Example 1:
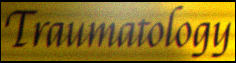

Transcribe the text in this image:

Traumatology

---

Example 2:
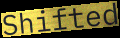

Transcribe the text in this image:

Shifted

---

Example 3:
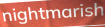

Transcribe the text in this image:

nightmarish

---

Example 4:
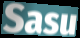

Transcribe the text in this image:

Sasu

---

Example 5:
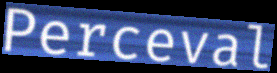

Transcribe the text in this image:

Perceval